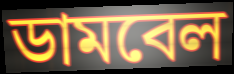
ডামবেল